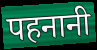
पहनानी